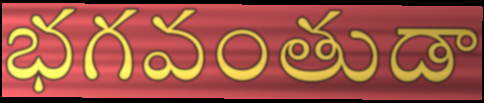
భగవంతుడా